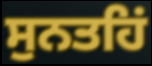
ਸੁਨਤਹਿਂ